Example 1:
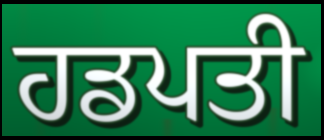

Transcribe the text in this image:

ਹਡਪਤੀ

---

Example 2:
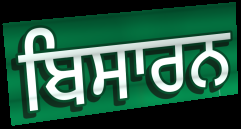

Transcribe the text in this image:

ਬਿਸਾਰਨ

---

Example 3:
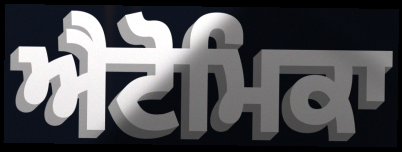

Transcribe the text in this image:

ਐਟੋਮਿਕਾ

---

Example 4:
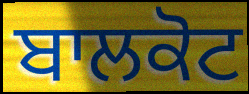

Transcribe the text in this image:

ਬਾਲਕੋਟ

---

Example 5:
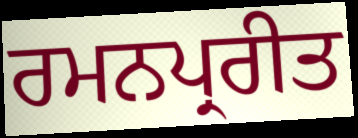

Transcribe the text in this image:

ਰਮਨਪ੍ਰਰੀਤ